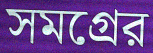
সমগ্রের